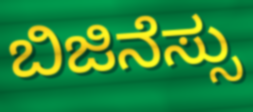
ಬಿಜಿನೆಸ್ಸು